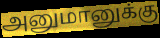
அனுமானுக்கு